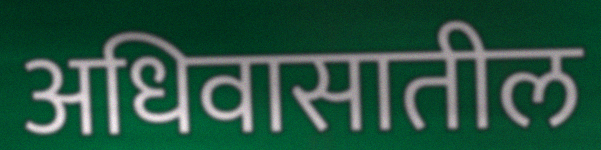
अधिवासातील